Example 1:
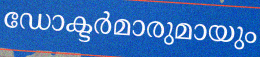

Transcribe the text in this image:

ഡോക്ടർമാരുമായും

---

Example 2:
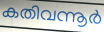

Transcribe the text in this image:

കതിവന്നൂർ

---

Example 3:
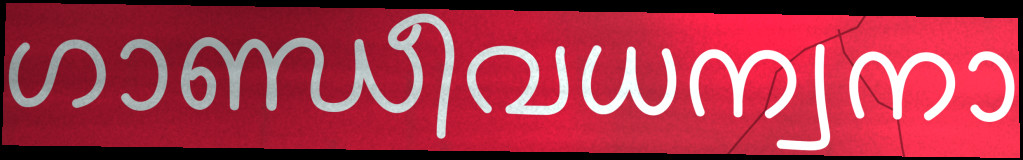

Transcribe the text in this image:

ഗാണ്ഡീവധന്വനാ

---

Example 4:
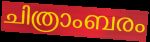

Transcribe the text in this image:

ചിത്രാംബരം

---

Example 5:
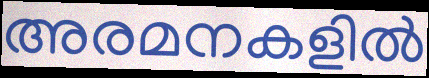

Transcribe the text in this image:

അരമനകളിൽ